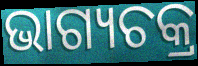
ଭାଗ୍ୟଚକ୍ର